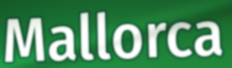
Mallorca